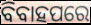
ବିବାହପରେ